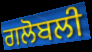
ਗਲੋਬਲੀ